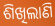
ଶିଖିଲାଣି